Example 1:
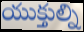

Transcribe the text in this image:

యుక్తుల్ని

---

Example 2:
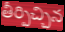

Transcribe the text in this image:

తీర్పిచ్చిన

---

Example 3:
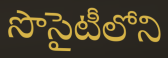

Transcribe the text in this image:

సొసైటీలోని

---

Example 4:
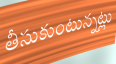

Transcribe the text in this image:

తీసుకుంటున్నట్లు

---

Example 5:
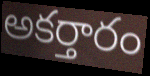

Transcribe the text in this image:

అకర్తారం